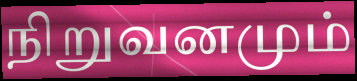
நிறுவனமும்